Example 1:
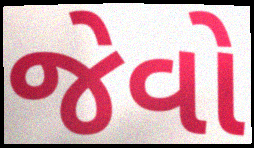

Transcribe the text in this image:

જેવો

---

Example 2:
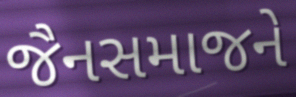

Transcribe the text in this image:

જૈનસમાજને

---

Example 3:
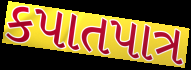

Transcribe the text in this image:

કપાતપાત્ર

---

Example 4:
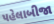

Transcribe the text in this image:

પહેલાબીજા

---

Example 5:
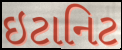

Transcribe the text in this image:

ઇટાનિટ